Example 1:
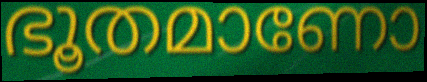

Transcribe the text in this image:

ഭൂതമാണോ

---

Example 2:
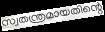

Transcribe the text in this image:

സ്വതന്ത്രമായതിന്റെ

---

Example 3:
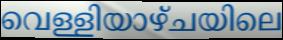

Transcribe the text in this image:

വെള്ളിയാഴ്ചയിലെ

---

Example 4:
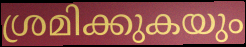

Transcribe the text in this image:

ശ്രമിക്കുകയും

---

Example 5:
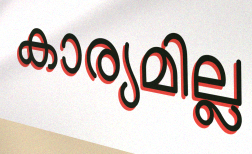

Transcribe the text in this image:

കാര്യമില്ല